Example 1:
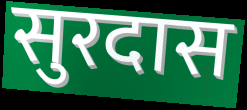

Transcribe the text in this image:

सुरदास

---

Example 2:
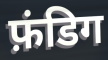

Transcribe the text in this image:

फ़ंडिग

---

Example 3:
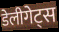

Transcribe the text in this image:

डेलीगेट्स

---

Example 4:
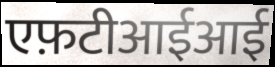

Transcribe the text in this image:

एफ़टीआईआई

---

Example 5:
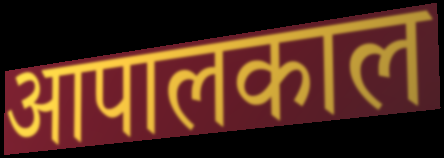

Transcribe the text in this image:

आपालकाल